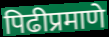
पिढीप्रमाणे